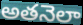
అతనెలా